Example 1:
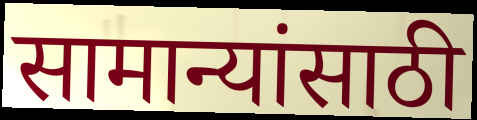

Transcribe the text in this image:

सामान्यांसाठी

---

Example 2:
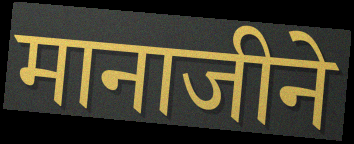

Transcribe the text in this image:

मानाजीने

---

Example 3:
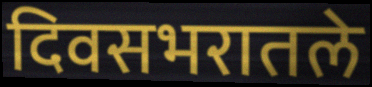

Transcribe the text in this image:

दिवसभरातले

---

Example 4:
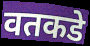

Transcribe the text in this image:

वतकडे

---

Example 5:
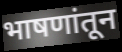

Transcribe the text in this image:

भाषणांतून